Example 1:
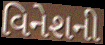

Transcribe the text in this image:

વિનેશની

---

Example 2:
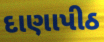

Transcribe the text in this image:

દાણાપીઠ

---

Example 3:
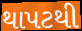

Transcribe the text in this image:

થાપટથી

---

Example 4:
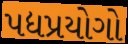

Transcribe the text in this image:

પદ્યપ્રયોગો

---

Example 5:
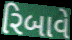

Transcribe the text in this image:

રિબાવે